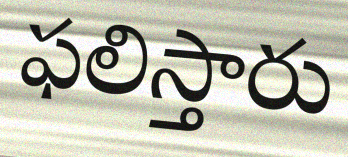
ఫలిస్తారు